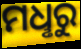
ମଧୢରୁ